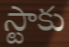
స్టాకు